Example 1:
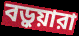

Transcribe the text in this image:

বড়ুয়ারা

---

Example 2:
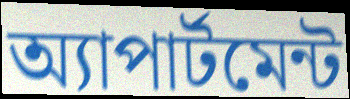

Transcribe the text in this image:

অ্যাপার্টমেন্ট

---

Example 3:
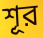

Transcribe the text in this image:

শূর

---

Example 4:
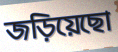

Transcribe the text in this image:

জড়িয়েছো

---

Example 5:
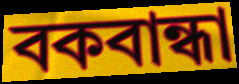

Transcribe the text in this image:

বকবান্ধা